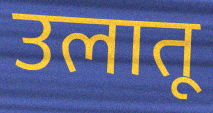
उलातू